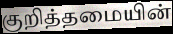
குறித்தமையின்